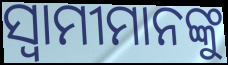
ସ୍ବାମୀମାନଙ୍କୁ